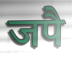
जपै